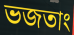
ভজতাং